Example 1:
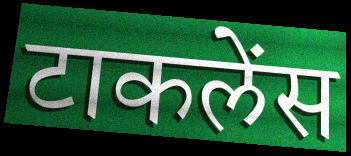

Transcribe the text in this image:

टाकलेंस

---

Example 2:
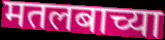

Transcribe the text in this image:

मतलबाच्या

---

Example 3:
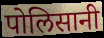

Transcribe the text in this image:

पोलिसानी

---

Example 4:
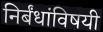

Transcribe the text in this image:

निर्बंधांविषयी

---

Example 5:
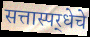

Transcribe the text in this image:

सत्तास्पर्धेचे